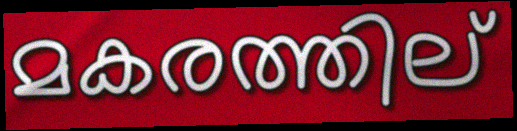
മകരത്തില്